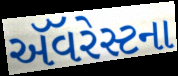
ઍૅવરેસ્ટના